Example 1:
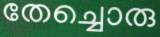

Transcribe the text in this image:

തേച്ചൊരു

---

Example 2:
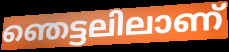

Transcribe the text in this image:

ഞെട്ടലിലാണ്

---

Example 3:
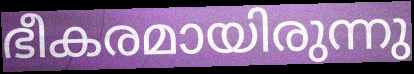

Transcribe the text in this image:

ഭീകരമായിരുന്നു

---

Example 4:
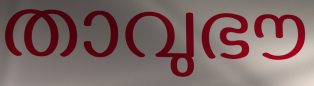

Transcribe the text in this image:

താവുഭൗ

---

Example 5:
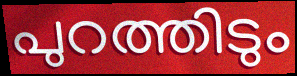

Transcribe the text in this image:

പുറത്തിടും